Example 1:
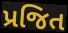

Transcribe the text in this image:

પ્રજિત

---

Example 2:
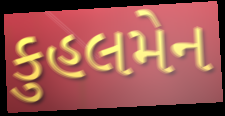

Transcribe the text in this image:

કુહલમેન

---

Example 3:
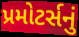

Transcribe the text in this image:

પ્રમોટર્સનું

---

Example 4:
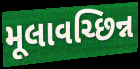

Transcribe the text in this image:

મૂલાવચ્છિન્ન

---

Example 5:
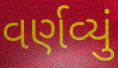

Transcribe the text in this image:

વર્ણવ્યું